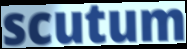
scutum